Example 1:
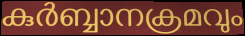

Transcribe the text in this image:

കുർബ്ബാനക്രമവും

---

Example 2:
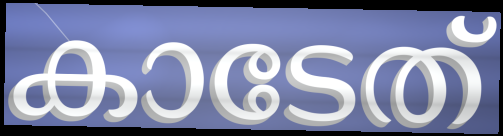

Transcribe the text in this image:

കാടേത്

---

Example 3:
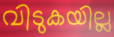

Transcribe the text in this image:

വിടുകയില്ല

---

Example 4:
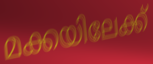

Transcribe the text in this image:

മക്കയിലേക്ക്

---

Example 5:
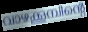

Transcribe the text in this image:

വാഴക്കൂമ്പിന്റെ